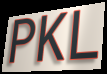
PKL